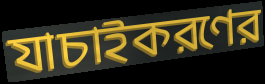
যাচাইকরণের